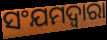
ସଂଯମଦ୍ୱାରା